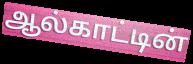
ஆல்காட்டின்